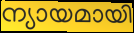
ന്യായമായി